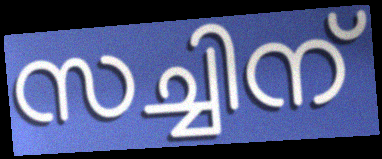
സച്ചിന്